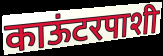
काऊंटरपाशी